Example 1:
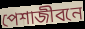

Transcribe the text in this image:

পেশাজীবনে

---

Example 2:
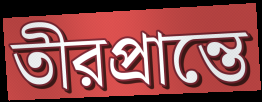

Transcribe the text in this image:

তীরপ্রান্তে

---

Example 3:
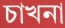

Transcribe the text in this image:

চাখনা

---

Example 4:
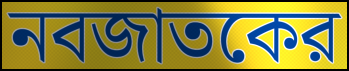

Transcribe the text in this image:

নবজাতকের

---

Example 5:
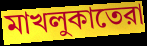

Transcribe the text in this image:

মাখলুকাতেরা